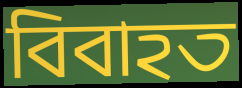
বিবাহত